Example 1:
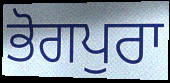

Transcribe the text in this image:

ਭੋਗਪੁਰਾ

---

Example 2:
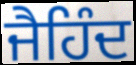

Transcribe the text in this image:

ਜੈਹਿੰਦ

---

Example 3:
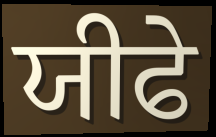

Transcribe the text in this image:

ਯੀਫੇ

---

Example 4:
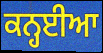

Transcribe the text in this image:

ਕਨ੍ਹਈਆ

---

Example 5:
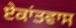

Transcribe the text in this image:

ਏਕਾਂਤਵਾਸ